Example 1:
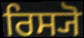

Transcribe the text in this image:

ਰਿਸ੍ਯੋ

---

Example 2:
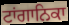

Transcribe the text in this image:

ਟਾਂਗਾਨਿਕਾ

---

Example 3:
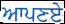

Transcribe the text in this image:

ਆਪਣਏ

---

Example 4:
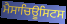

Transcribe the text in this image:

ਮੈਸਾਚਿਊਸਿਟਸ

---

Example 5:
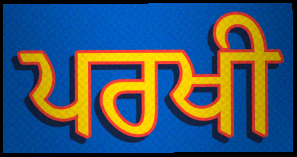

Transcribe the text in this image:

ਪਰਖੀ